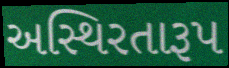
અસ્થિરતારૂપ